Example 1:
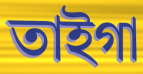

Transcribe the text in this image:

তাইগা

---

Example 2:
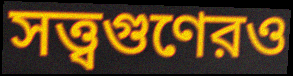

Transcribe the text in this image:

সত্ত্বগুণেরও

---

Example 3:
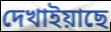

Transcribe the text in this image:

দেখাইয়াছে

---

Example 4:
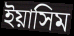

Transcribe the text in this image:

ইয়াসিম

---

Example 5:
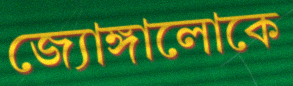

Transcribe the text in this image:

জ্যোঙ্গালোকে